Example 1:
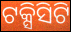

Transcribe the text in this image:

ଟକ୍ସିସିଟି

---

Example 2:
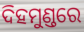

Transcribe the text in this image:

ଦିହମୁଣ୍ଡରେ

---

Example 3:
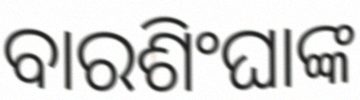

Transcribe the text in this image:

ବାରଶିଂଘାଙ୍କ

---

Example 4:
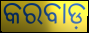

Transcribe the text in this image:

କରବାଡ଼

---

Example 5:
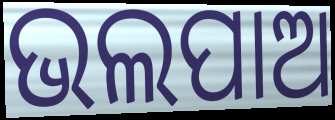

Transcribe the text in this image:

ଭଲପାଅ